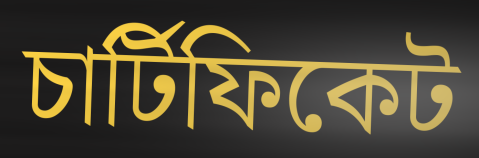
চাৰ্টিফিকেট